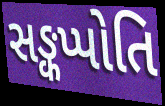
સઙ્કપ્પોતિ